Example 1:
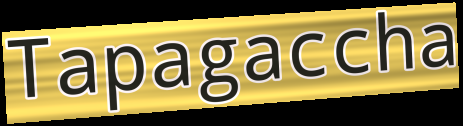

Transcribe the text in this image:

Tapagaccha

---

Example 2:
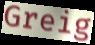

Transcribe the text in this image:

Greig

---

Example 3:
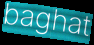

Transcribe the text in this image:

baghat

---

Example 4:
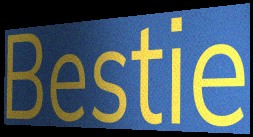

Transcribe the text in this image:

Bestie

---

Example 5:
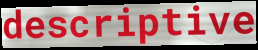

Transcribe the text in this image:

descriptive